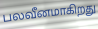
பலவீனமாகிறது